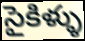
సైకిళ్ళు